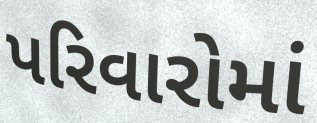
પરિવારોમાં